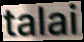
talai